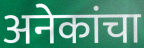
अनेकांचा